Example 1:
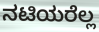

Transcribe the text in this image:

ನಟಿಯರೆಲ್ಲ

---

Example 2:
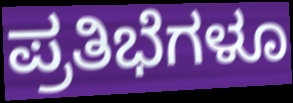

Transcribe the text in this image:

ಪ್ರತಿಭೆಗಳೂ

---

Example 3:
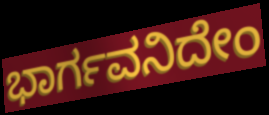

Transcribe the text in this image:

ಭಾರ್ಗವನಿದೇಂ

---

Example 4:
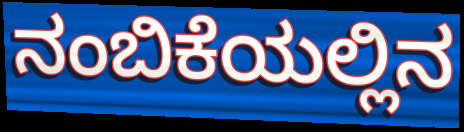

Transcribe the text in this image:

ನಂಬಿಕೆಯಲ್ಲಿನ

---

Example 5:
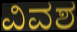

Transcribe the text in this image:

ವಿವಶ